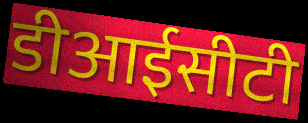
डीआईसीटी